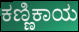
ಕಣ್ಣಿಕಾಯ